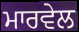
ਮਾਰਵੇਲ